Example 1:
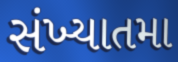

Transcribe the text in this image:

સંખ્યાતમા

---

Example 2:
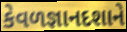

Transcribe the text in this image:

કેવળજ્ઞાનદશાને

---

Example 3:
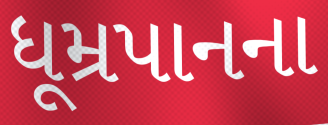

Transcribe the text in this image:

ધૂમ્રપાનના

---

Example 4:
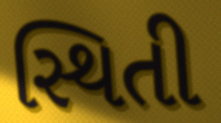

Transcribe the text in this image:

સ્થિતી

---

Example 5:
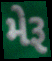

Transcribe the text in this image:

મેરૂ